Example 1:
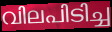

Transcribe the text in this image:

വിലപിടിച്ച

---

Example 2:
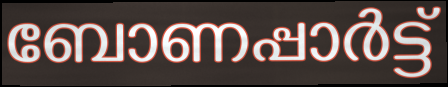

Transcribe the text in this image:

ബോണപ്പാർട്ട്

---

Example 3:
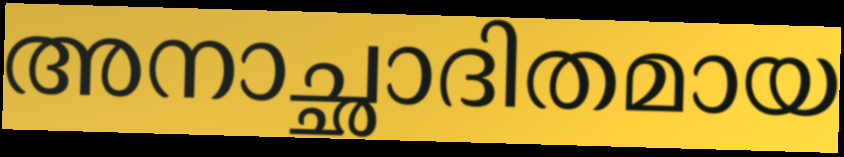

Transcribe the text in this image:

അനാച്ഛാദിതമായ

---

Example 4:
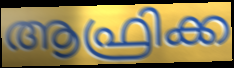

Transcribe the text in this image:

ആഫ്രിക്ക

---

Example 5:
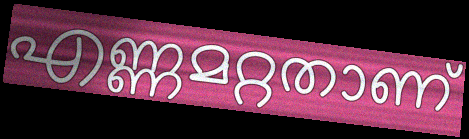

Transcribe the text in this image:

എണ്ണമറ്റതാണ്